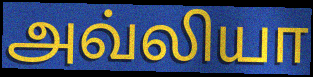
அவ்லியா